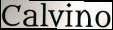
Calvino